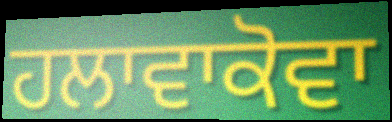
ਹਲਾਵਾਕੋਵਾ